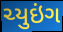
ચ્યુઇંગ